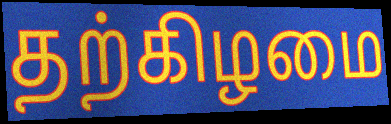
தற்கிழமை